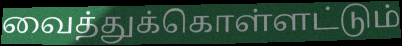
வைத்துக்கொள்ளட்டும்